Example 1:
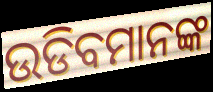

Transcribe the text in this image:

ଉଡିବମାନଙ୍କ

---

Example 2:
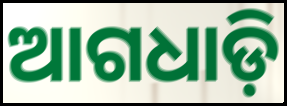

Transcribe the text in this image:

ଆଗଧାଡ଼ି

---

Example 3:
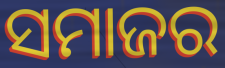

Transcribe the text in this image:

ସମାଜର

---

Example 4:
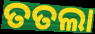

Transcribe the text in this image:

ତତଲା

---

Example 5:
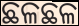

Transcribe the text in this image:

ଛଳଛଳ